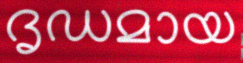
ദൃഡമായ